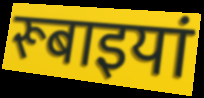
रूबाइयां